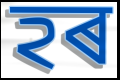
হৰ